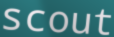
scout